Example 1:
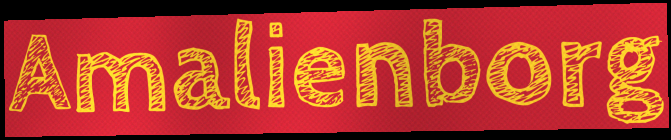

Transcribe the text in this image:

Amalienborg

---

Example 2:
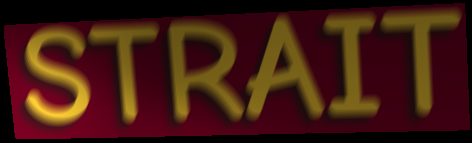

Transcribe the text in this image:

STRAIT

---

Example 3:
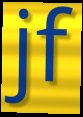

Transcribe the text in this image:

jf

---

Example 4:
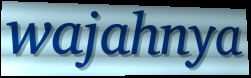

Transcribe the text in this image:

wajahnya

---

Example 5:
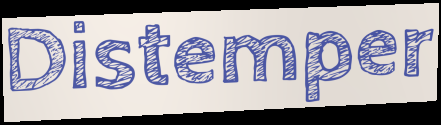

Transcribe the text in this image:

Distemper